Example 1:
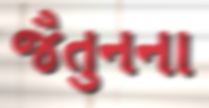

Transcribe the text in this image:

જૈતુનના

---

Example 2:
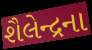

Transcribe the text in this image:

શૈલેન્દ્રના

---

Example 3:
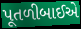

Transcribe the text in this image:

પૂતળીબાઈએ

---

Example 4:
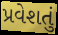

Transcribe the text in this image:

પ્રવેશતું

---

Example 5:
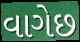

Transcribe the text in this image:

વાગેછ